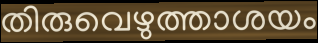
തിരുവെഴുത്താശയം